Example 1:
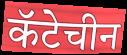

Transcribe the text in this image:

कॅटेचीन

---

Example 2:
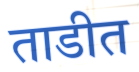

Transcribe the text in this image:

ताडीत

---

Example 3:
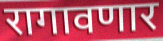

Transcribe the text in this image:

रागावणार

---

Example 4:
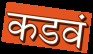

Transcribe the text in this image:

कडवं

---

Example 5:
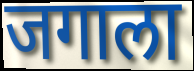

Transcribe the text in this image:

जगाला